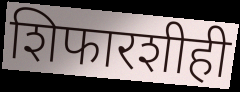
शिफारशीही